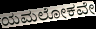
ಯಮಲೋಕವೇ